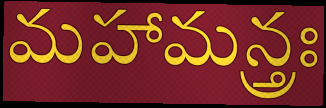
మహామన్త్రః